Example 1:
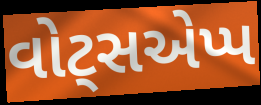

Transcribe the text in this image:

વોટ્સએપ્પ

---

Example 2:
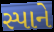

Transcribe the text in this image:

સ્પાને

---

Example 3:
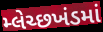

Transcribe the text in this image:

મ્લેચ્છખંડમાં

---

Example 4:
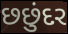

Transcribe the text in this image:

છછુંદર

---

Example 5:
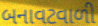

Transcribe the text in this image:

બનાવટવાળી